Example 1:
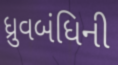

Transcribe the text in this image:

ધ્રુવબંધિની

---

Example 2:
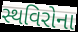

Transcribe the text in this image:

સ્થવિરોના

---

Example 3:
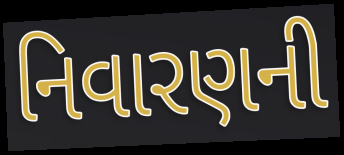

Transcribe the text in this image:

નિવારણની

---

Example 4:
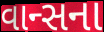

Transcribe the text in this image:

વાન્સના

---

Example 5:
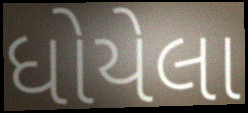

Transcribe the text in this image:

ધોયેલા